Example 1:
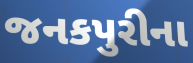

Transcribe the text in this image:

જનકપુરીના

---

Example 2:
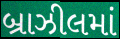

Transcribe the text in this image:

બ્રાઝીલમાં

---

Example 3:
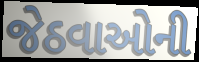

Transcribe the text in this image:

જેઠવાઓની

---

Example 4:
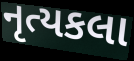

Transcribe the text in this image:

નૃત્યકલા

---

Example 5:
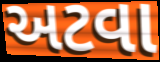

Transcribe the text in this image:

અટવા